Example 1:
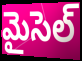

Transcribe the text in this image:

మైసెల్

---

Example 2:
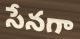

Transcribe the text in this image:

సేనగా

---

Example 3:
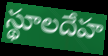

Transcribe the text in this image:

స్థూలదేహ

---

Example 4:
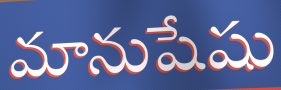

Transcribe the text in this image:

మానుషేషు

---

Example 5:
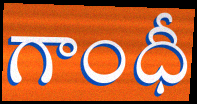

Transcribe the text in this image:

గాంధీ